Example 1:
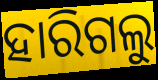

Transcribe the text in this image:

ହାରିଗଲୁ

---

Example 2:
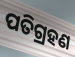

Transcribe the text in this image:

ପତିଗ୍ରହଣ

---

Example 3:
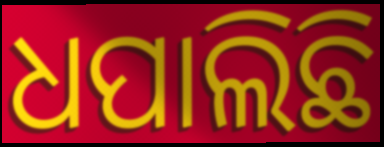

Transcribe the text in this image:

ଧପାଲିଛି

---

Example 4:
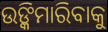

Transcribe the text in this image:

ଉଙ୍କିମାରିବାକୁ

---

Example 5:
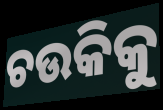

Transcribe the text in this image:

ଚଉକିକୁ